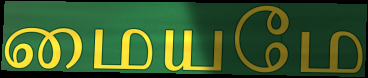
மையமே